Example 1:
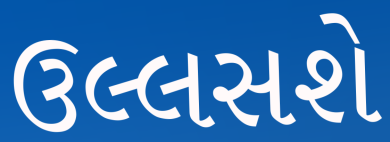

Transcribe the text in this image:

ઉલ્લસશે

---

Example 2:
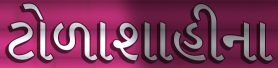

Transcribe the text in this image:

ટોળાશાહીના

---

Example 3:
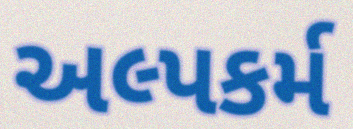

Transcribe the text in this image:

અલ્પકર્મ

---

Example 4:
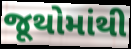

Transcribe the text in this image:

જૂથોમાંથી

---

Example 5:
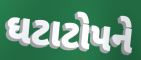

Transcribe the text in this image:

ઘટાટોપને